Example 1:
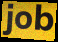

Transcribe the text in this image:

job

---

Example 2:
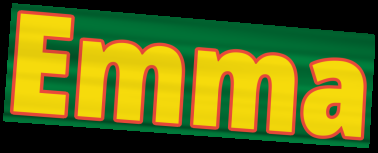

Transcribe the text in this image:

Emma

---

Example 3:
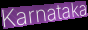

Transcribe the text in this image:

Karnataka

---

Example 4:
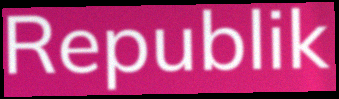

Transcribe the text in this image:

Republik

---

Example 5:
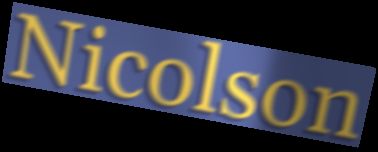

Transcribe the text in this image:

Nicolson